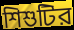
শিশুটির